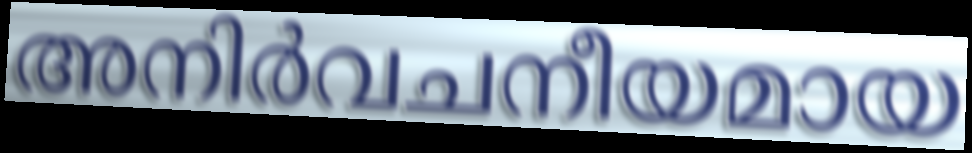
അനിർവചനീയമായ